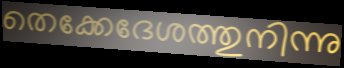
തെക്കേദേശത്തുനിന്നു